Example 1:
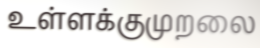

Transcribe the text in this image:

உள்ளக்குமுறலை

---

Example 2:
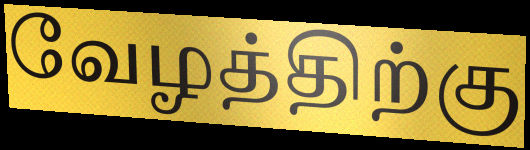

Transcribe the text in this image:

வேழத்திற்கு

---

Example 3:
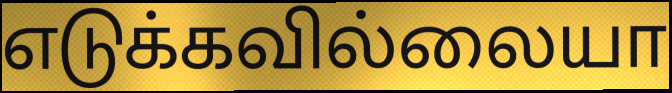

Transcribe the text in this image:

எடுக்கவில்லையா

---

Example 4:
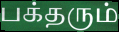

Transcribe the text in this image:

பக்தரும்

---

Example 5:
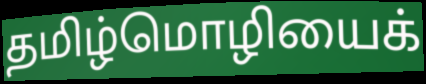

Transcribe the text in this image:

தமிழ்மொழியைக்